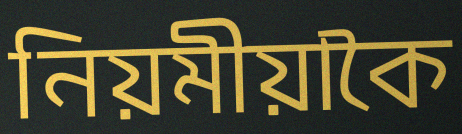
নিয়মীয়াকৈ